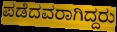
ಪಡೆದವರಾಗಿದ್ದರು